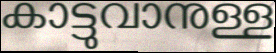
കാട്ടുവാനുള്ള